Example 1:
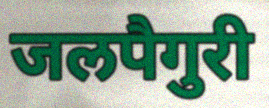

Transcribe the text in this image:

जलपैगुरी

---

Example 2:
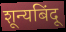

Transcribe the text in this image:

शून्यबिंदू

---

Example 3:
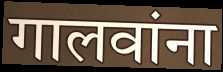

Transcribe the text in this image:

गालवांना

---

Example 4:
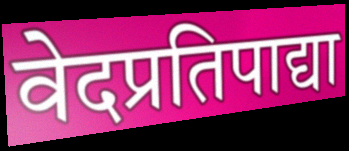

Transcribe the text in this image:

वेदप्रतिपाद्या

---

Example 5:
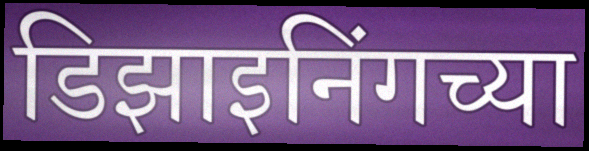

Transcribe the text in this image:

डिझाइनिंगच्या